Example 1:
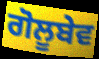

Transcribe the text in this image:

ਗੋਲੂਬੇਵ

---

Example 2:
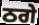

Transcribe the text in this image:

ਠਗੇ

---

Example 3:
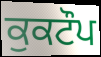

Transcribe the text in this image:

ਕੁਕਟੌਪ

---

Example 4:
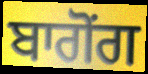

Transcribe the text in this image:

ਬਾਗੋਂਗ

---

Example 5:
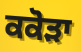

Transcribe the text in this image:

ਕਕੋੜਾ